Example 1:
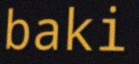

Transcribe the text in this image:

baki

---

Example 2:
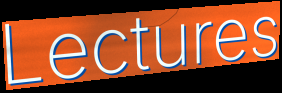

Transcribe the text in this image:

Lectures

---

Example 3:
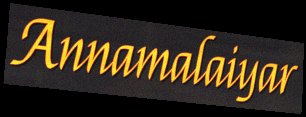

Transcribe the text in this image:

Annamalaiyar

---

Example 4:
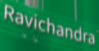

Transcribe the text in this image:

Ravichandra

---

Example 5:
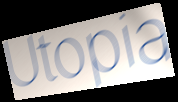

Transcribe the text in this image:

Utopia